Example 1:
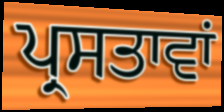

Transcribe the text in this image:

ਪ੍ਰਸਤਾਵਾਂ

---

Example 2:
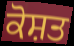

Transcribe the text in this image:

ਕੋਸ਼ਤ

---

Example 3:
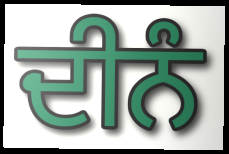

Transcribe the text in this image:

ਦੀਨੰ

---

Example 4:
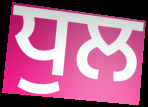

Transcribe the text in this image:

ਧੁਲ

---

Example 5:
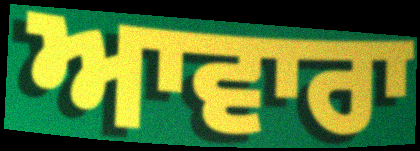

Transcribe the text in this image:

ਆਵਾਰਾ